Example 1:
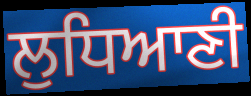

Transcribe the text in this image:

ਲੁਧਿਆਣੀ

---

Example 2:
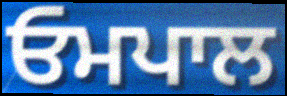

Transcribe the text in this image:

ਓਮਪਾਲ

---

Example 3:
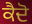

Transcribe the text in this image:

ਕੈਦੋ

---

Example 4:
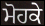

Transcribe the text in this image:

ਮੋਹਕੇ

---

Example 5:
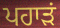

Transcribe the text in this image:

ਪਹਾੜਂ